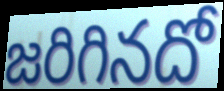
జరిగినదో